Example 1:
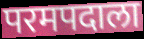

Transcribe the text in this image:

परमपदाला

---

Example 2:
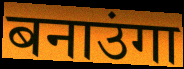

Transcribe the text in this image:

बनाउंगा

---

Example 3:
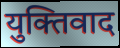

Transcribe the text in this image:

युक्तिवाद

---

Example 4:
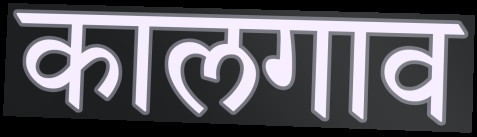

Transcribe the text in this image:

कालगाव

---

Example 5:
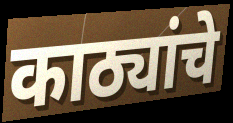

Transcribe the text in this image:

काठ्यांचे